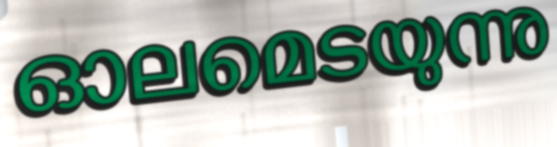
ഓലമെടയുന്നു